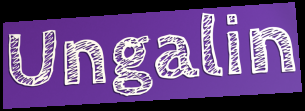
Ungalin